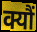
क्यौं